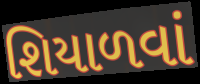
શિયાળવાં